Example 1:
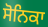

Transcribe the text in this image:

ਸੋਨਿਕਾ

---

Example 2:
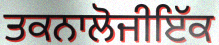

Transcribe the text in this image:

ਤਕਨਾਲੋਜੀਇੱਕ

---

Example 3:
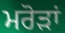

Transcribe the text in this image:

ਮਰੋੜਾਂ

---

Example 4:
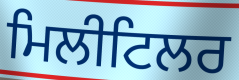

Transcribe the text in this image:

ਮਿਲੀਟਿਲਰ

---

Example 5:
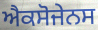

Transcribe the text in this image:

ਐਕਸੋਜੇਨਸ